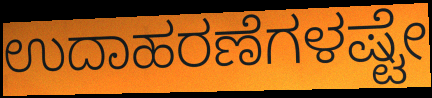
ಉದಾಹರಣೆಗಳಷ್ಟೇ